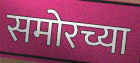
समोरच्या